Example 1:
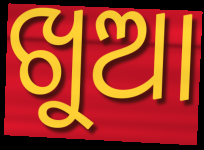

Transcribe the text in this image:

ଖୁଆ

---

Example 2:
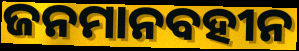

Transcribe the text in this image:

ଜନମାନବହୀନ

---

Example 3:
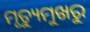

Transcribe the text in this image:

ମୃତ୍ୟୁମୁଖରୁ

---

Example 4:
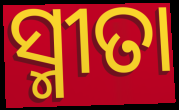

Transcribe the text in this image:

ସ୍ମୀତା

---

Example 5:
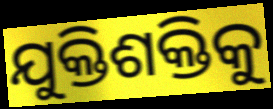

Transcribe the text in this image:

ଯୁକ୍ତିଶକ୍ତିକୁ